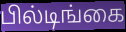
பில்டிங்கை